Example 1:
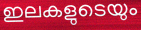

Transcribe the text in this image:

ഇലകളുടെയും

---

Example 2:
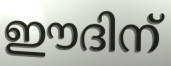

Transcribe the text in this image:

ഈദിന്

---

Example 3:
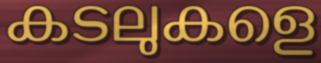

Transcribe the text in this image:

കടലുകളെ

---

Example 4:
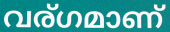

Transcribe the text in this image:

വര്ഗമാണ്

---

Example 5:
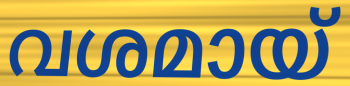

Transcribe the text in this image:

വശമായ്